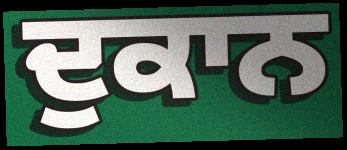
ਦੁਕਾਨ